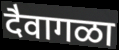
दैवागळा